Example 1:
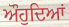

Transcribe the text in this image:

ਔਹੁਦਿਆਂ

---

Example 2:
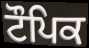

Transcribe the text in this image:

ਟੌਪਿਕ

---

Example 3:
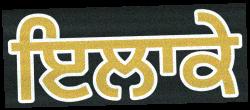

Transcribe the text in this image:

ਇਲਾਕੇ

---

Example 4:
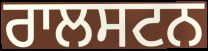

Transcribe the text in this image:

ਰਾਲਸਟਨ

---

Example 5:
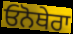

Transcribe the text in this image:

ਓਨੋਥੇਰਾ